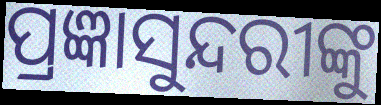
ପ୍ରଜ୍ଞାସୁନ୍ଦରୀଙ୍କୁ